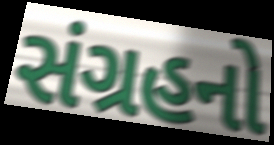
સંગ્રહનો